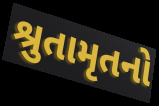
શ્રુતામૃતનો